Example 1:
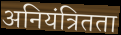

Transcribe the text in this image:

अनियंत्रितता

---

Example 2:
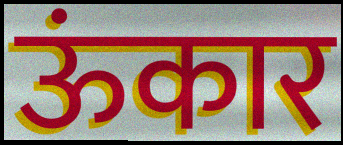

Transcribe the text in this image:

ऊंकार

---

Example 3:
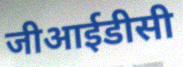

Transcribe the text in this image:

जीआईडीसी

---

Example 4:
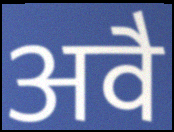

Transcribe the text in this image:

अवै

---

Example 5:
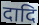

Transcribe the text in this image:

दादि